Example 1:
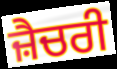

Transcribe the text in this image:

ਜ਼ੈਚਰੀ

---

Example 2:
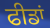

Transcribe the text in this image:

ਫੀਡਾਂ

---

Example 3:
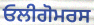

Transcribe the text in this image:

ਓਲੀਗੋਮਰਸ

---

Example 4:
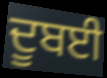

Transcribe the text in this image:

ਦੂਬਈ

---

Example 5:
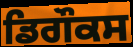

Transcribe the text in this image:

ਡਿਗੌਕਸ